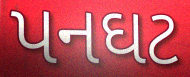
પનઘટ